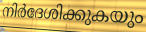
നിർദേശിക്കുകയും